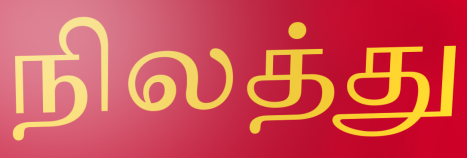
நிலத்து